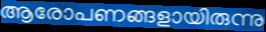
ആരോപണങ്ങളായിരുന്നു